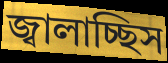
জ্বালাচ্ছিস